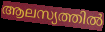
ആലസ്യത്തിൽ